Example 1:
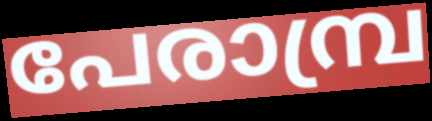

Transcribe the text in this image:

പേരാമ്പ്ര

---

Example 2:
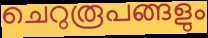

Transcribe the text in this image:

ചെറുരൂപങ്ങളും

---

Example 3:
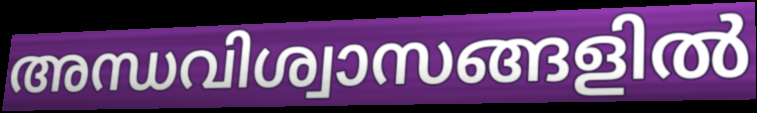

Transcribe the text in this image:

അന്ധവിശ്വാസങ്ങളിൽ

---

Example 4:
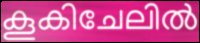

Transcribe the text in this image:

കൂകിചേലിൽ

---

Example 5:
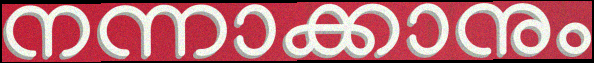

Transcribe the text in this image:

നന്നാക്കാനും